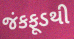
જંકફૂડથી